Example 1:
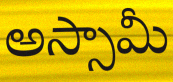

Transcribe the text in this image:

అస్సామీ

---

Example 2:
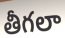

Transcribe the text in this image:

తీగలా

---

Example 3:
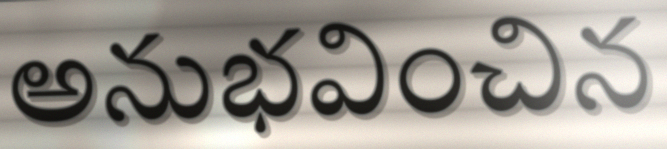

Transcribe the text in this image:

అనుభవించిన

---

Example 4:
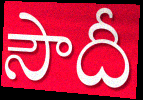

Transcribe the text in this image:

సౌదీ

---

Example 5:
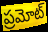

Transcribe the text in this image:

ప్రమోట్